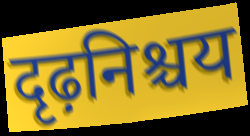
दृढ़निश्चय